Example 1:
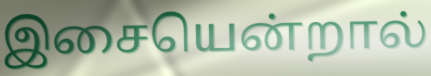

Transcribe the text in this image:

இசையென்றால்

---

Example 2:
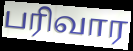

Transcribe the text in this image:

பரிவார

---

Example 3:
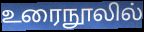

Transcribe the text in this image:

உரைநூலில்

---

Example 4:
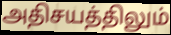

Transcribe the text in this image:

அதிசயத்திலும்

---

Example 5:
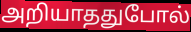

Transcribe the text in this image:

அறியாததுபோல்